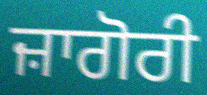
ਜ਼ਾਗੋਰੀ